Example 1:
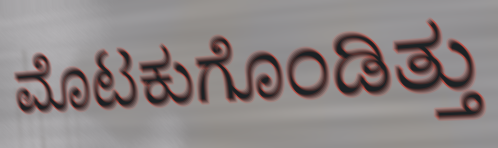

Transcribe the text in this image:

ಮೊಟಕುಗೊಂಡಿತ್ತು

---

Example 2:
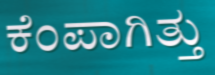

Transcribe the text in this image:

ಕೆಂಪಾಗಿತ್ತು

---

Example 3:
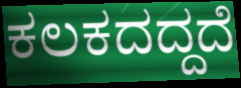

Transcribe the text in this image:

ಕಲಕದದ್ದದೆ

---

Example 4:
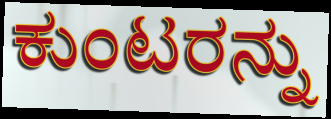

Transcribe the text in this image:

ಕುಂಟರನ್ನು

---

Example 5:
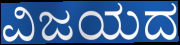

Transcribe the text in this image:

ವಿಜಯದ